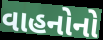
વાહનોનો